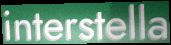
interstella